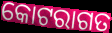
କୋଟରାଗତ